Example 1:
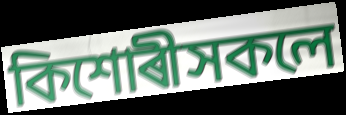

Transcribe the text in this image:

কিশোৰীসকলে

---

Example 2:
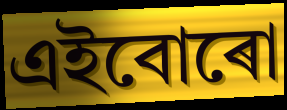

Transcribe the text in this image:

এইবোৰো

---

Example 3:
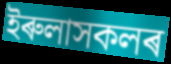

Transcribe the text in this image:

ইৰুলাসকলৰ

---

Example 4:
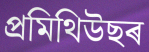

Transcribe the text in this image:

প্ৰমিথিউছৰ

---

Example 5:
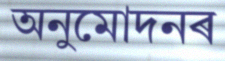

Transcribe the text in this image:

অনুমোদনৰ